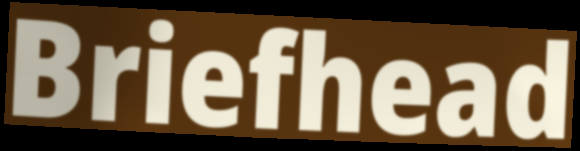
Briefhead